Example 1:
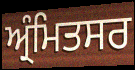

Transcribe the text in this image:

ਅ੍ਰੰਮਿਤਸਰ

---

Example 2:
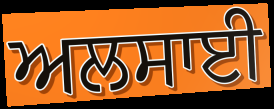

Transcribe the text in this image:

ਅਲਸਾਈ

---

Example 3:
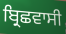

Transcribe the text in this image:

ਬ੍ਰਿਛਵਾਸੀ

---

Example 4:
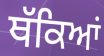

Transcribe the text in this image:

ਥੱਕਿਆਂ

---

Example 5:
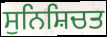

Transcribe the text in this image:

ਸੁਨਿਸ਼ਿਚਤ